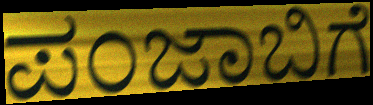
ಪಂಜಾಬಿಗೆ